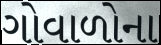
ગોવાળોના